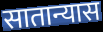
सातान्यास